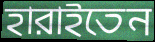
হারাইতেন